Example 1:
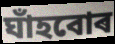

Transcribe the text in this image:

ঘাঁহবোৰ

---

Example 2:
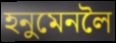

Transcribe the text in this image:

হনুমেনলৈ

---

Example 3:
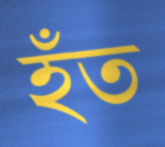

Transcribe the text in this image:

হঁত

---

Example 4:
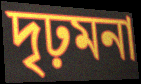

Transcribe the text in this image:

দৃঢ়মনা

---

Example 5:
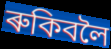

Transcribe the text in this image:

ৰুকিবলৈ